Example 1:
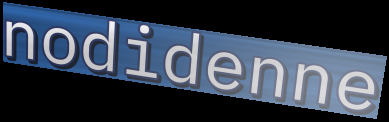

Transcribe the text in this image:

nodidenne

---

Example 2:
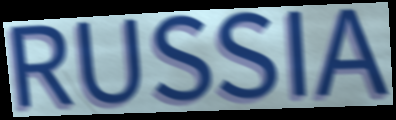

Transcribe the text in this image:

RUSSIA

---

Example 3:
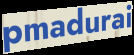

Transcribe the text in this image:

pmadurai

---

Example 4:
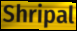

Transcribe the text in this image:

Shripal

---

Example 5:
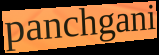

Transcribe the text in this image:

panchgani